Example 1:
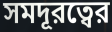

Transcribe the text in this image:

সমদূরত্বের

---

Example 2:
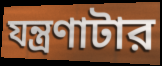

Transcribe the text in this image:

যন্ত্রণাটার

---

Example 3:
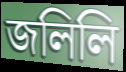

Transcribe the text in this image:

জলিলি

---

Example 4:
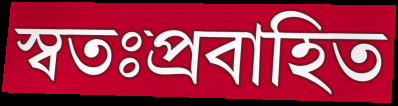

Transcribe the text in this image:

স্বতঃপ্রবাহিত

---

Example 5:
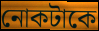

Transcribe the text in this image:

নোকটাকে